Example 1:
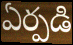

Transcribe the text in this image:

ఏర్పడి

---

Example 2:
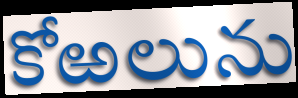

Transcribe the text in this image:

కోఱలును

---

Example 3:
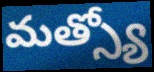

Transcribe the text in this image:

మత్స్యో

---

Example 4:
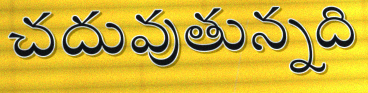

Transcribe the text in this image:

చదువుతున్నది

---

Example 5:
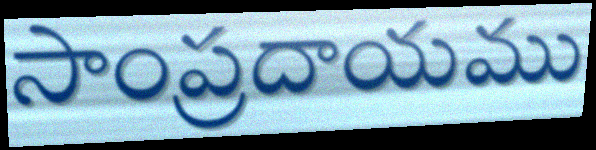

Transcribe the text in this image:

సాంప్రదాయము